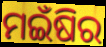
ମଇଁଷିର